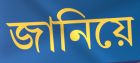
জানিয়ে